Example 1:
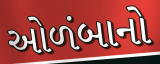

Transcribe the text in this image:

ઓળંબાનો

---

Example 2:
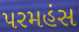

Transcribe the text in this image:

પરમહંસ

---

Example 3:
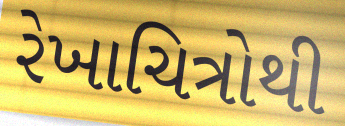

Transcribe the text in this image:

રેખાચિત્રોથી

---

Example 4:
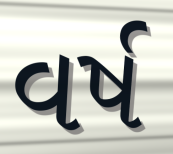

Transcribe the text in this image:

વર્ષ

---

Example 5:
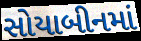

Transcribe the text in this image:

સોયાબીનમાં